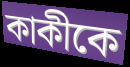
কাকীকে